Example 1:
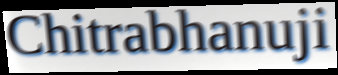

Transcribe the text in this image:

Chitrabhanuji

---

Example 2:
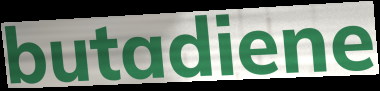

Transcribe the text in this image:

butadiene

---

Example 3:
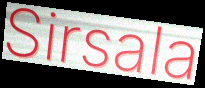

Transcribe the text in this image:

Sirsala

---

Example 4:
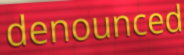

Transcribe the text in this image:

denounced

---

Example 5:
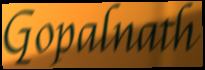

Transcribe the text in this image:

Gopalnath